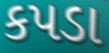
કપડા